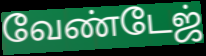
வேண்டேஜ்